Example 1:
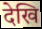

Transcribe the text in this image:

देखि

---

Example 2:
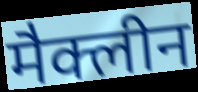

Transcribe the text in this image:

मैक्लीन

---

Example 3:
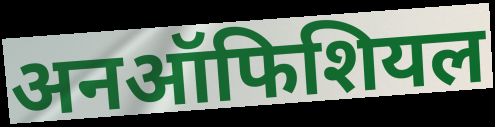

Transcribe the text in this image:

अनऑफिशियल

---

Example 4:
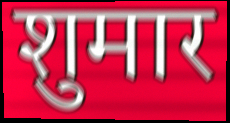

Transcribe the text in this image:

शुमार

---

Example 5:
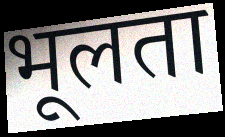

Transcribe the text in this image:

भूलता